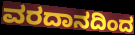
ವರದಾನದಿಂದ